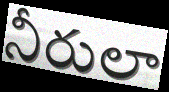
నీరులా